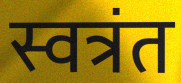
स्वत्रंत